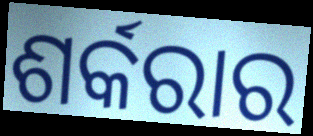
ଶର୍କରାର